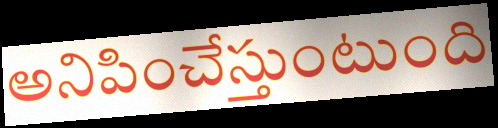
అనిపించేస్తుంటుంది